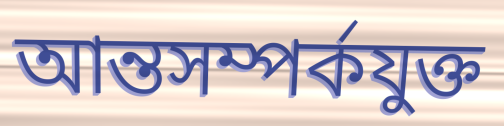
আন্তসম্পর্কযুক্ত